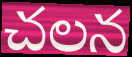
చలన